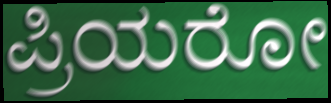
ಪ್ರಿಯರೋ